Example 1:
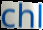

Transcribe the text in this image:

chl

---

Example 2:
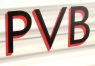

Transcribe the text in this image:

PVB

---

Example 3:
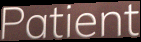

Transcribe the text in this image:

Patient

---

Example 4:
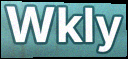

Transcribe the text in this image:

Wkly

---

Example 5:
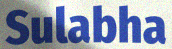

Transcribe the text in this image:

Sulabha